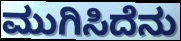
ಮುಗಿಸಿದೆನು